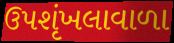
ઉપશૃંખલાવાળા